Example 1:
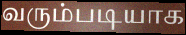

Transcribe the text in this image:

வரும்படியாக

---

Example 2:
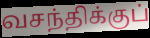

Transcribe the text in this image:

வசந்திக்குப்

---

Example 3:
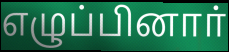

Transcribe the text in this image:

எழுப்பினார்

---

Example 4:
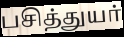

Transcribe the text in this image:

பசித்துயர்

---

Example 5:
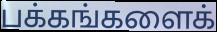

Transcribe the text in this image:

பக்கங்களைக்